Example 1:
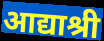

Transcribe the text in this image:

आद्याश्री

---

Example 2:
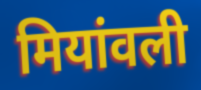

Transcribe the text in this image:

मियांवली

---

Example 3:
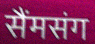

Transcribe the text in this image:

सैंमसंग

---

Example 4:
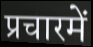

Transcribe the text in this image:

प्रचारमें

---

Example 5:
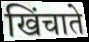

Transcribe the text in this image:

खिंचाते